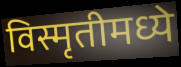
विस्मृतीमध्ये